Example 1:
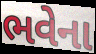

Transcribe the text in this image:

ભવેના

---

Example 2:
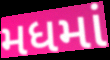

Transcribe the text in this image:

મધમાં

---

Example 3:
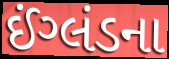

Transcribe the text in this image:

ઈંગ્લંડના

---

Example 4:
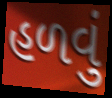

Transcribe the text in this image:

હળવું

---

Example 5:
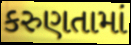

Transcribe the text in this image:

કરુણતામાં